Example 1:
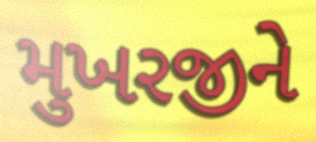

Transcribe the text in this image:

મુખરજીને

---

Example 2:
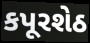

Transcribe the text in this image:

કપૂરશેઠ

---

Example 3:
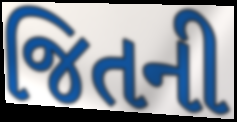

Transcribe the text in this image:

જિતની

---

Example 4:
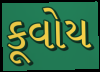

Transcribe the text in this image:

કૂવોય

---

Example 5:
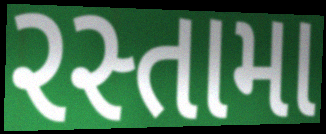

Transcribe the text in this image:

રસ્તામા